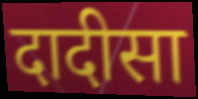
दादीसा